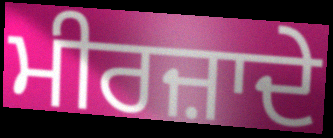
ਮੀਰਜ਼ਾਦੇ